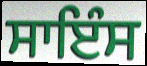
ਸਾਇੰਸ